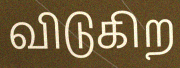
விடுகிற